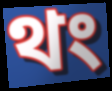
থং